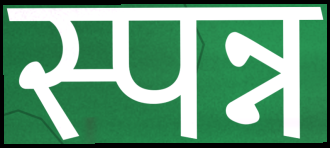
स्पन्न